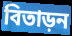
বিতাড়ন